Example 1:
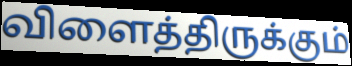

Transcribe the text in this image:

விளைத்திருக்கும்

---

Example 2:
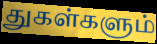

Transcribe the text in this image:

துகள்களும்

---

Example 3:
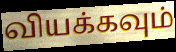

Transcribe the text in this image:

வியக்கவும்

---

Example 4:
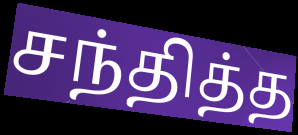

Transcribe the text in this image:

சந்தித்த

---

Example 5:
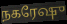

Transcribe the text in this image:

நகரேஷு